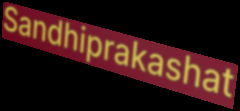
Sandhiprakashat